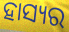
ହାସ୍ୟର